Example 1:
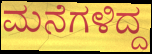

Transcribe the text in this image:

ಮನೆಗಳಿದ್ದ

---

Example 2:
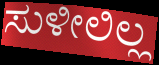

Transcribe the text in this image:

ಸುಳೀಲಿಲ್ಲ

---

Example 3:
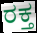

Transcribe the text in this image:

ರಕ್ತ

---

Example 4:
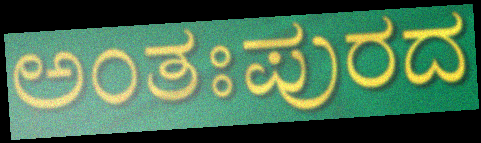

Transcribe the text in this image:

ಅಂತಃಪುರದ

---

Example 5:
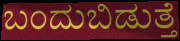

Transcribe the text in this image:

ಬಂದುಬಿಡುತ್ತೆ